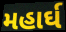
મહાર્ઘ